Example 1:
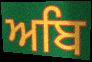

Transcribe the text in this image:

ਅਬਿ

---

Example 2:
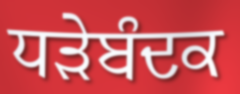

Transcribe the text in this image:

ਧੜੇਬੰਦਕ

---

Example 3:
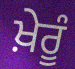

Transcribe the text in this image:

ਖ਼ੇਰੂੰ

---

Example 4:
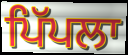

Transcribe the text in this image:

ਪਿੱਪਲਾ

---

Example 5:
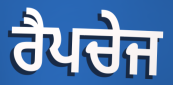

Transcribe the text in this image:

ਰੈਪਚੇਜ